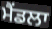
ਮੈਂਡਲਾ